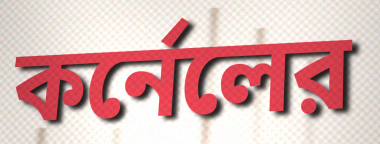
কর্নেলের